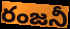
రంజనీ